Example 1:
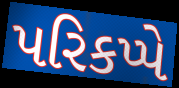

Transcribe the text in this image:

પરિકપ્પે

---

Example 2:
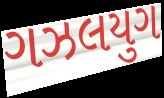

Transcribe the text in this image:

ગઝલયુગ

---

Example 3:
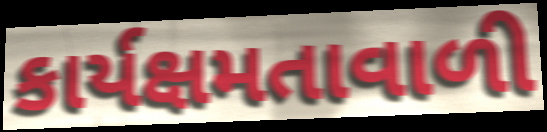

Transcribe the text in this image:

કાર્યક્ષમતાવાળી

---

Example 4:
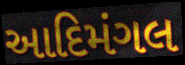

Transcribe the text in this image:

આદિમંગલ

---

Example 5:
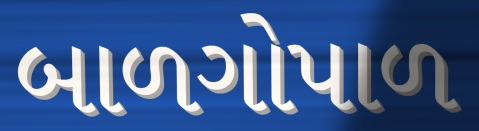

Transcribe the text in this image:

બાળગોપાળ